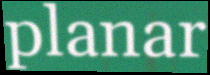
planar